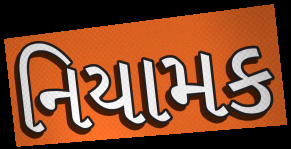
નિયામક